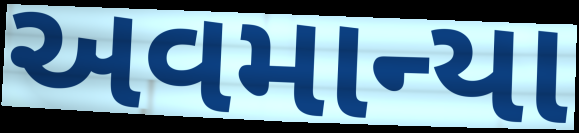
અવમાન્યા